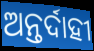
ଅନ୍ତର୍ଦାହୀ